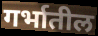
गर्भातील